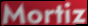
Mortiz